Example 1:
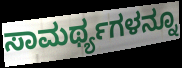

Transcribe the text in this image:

ಸಾಮರ್ಥ್ಯಗಳನ್ನೂ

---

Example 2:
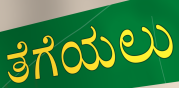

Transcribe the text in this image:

ತೆಗೆಯಲು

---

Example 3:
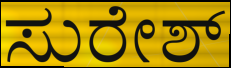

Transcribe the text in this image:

ಸುರೇಶ್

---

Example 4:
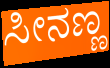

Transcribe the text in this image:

ಸೀನಣ್ಣ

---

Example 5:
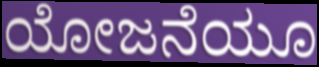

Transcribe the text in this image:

ಯೋಜನೆಯೂ